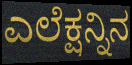
ಎಲೆಕ್ಷನ್ನಿನ